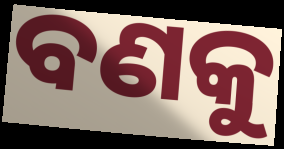
ବଣକୁ